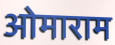
ओमाराम